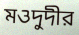
মওদুদীর